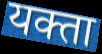
यक्ता